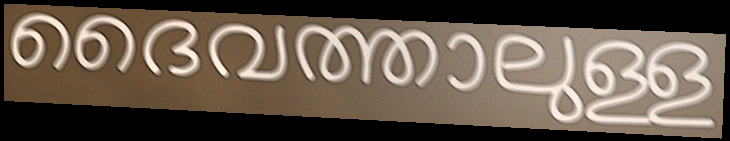
ദൈവത്താലുള്ള